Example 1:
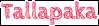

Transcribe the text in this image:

Tallapaka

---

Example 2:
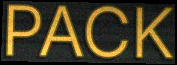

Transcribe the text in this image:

PACK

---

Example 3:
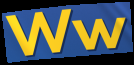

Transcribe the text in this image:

Ww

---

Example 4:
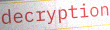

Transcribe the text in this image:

decryption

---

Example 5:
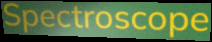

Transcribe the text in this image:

Spectroscope